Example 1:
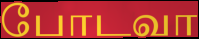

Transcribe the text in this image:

போடவா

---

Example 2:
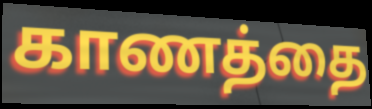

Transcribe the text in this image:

காணத்தை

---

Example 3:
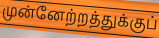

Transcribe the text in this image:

முன்னேற்றத்துக்குப்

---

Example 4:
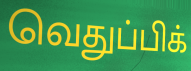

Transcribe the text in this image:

வெதுப்பிக்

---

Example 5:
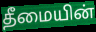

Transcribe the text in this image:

தீமையின்